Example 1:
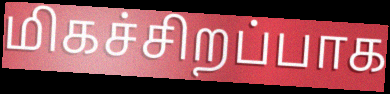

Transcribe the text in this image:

மிகச்சிறப்பாக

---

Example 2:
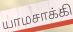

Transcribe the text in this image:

யாமசாக்கி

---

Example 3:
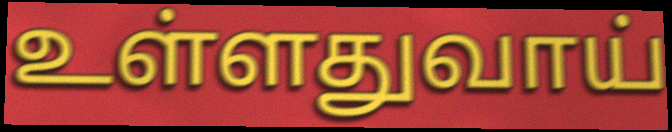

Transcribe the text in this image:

உள்ளதுவாய்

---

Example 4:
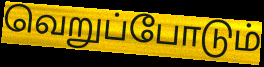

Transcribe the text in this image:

வெறுப்போடும்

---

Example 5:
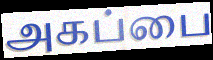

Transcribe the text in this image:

அகப்பை